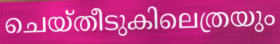
ചെയ്തീടുകിലെത്രയും